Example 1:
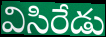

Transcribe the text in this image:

విసిరేడు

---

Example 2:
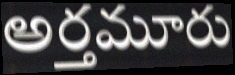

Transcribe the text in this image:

అర్తమూరు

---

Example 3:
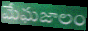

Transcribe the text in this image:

మేఘజాలం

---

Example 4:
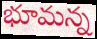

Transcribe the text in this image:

భూమన్న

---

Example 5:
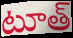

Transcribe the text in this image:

టూత్